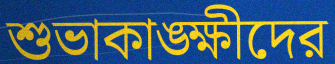
শুভাকাঙ্ক্ষীদের